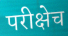
परीक्षेच